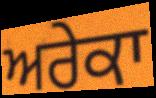
ਅਰੇਕਾ